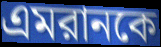
এমরানকে